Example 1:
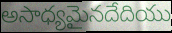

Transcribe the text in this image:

అసాధ్యమైనదేదియు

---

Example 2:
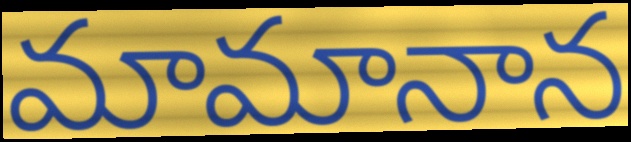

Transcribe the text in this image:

మామానాన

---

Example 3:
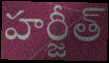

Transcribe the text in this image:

హర్జీత్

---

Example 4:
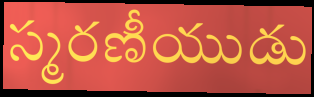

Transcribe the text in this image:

స్మరణీయుడు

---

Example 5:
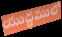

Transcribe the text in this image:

యుద్ధములో